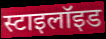
स्टाइलॉइड